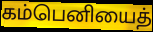
கம்பெனியைத்